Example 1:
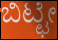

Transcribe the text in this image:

ಬಿಟ್ಟೇ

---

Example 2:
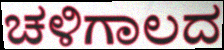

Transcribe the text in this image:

ಚಳಿಗಾಲದ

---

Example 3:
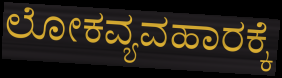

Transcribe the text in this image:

ಲೋಕವ್ಯವಹಾರಕ್ಕೆ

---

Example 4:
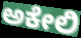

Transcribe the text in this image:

ಅಕೇಲಿ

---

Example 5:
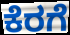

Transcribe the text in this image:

ಕೆರಗೆ